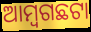
ଆମ୍ବଗଛଟା